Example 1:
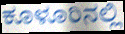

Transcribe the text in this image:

ಕೂಳೂರಿನಲ್ಲಿ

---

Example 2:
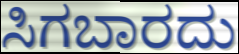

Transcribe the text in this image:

ಸಿಗಬಾರದು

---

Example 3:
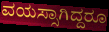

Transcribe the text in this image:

ವಯಸ್ಸಾಗಿದ್ದರೂ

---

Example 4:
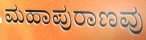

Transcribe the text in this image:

ಮಹಾಪುರಾಣವು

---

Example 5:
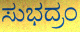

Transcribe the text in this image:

ಸುಭದ್ರಂ